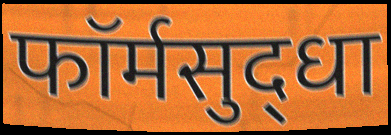
फॉर्मसुद्धा